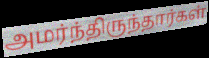
அமர்ந்திருந்தார்கள்